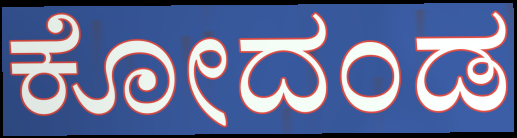
ಕೋದಂಡ